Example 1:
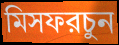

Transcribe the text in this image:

মিসফরচুন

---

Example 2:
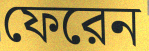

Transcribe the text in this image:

ফেরেন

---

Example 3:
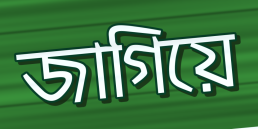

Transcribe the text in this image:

জাগিয়ে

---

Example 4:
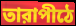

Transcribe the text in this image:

তারাপীঠে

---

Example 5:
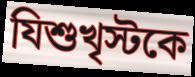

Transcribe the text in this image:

যিশুখৃস্টকে